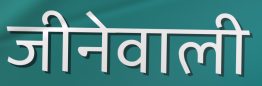
जीनेवाली